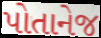
પોતાનેજ